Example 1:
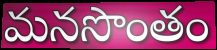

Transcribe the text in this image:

మనసొంతం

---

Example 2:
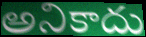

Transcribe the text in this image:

అనికాదు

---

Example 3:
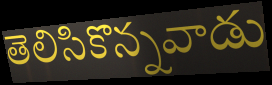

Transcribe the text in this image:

తెలిసికొన్నవాడు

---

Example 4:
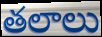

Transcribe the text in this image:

తలాలు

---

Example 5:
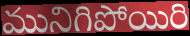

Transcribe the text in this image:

మునిగిపోయిరి